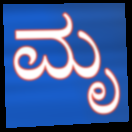
ಮೃ